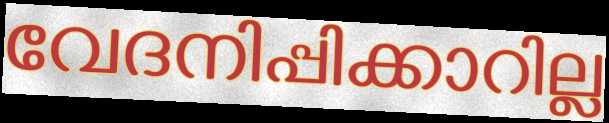
വേദനിപ്പിക്കാറില്ല